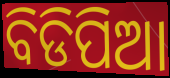
ବିଡିପିଆ